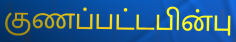
குணப்பட்டபின்பு